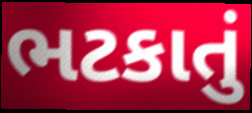
ભટકાતું